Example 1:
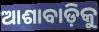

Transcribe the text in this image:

ଆଶାବାଡ଼ିକୁ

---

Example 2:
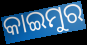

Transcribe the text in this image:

କାଇମୁର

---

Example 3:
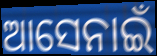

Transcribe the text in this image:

ଆସେନାଇଁ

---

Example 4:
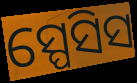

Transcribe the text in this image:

ସ୍ପେସିସ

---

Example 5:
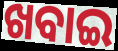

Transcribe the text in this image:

ଖବାଇ